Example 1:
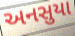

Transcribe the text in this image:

અનસુયા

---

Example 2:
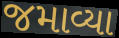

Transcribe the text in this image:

જમાવ્યા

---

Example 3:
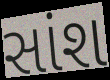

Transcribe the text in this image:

સાંશ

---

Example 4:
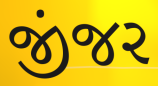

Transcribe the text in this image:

જીંજર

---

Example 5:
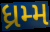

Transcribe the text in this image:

ધ્રમ્મ